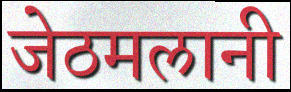
जेठमलानी